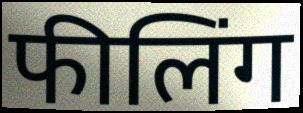
फीलिंग